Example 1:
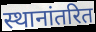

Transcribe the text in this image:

स्थानांतरित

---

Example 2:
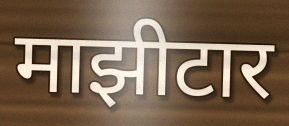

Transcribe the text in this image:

माझीटार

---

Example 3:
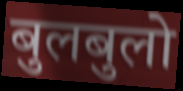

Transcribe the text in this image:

बुलबुलो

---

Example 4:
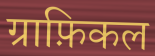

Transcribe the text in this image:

ग्राफ़िकल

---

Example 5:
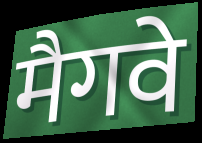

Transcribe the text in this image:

मैगवे